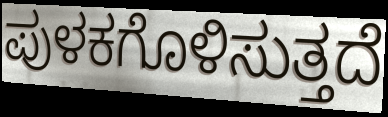
ಪುಳಕಗೊಳಿಸುತ್ತದೆ